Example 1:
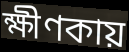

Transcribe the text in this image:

ক্ষীণকায়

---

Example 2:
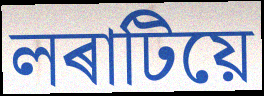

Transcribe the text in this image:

লৰাটিয়ে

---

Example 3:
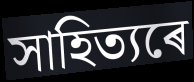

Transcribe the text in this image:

সাহিত্যৰে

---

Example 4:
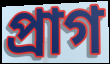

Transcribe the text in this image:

প্ৰাগ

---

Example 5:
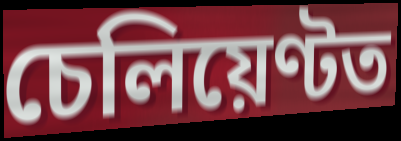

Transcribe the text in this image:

চেলিয়েণ্টত